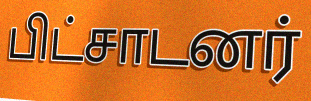
பிட்சாடனர்